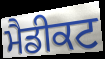
ਮੈਡੀਕਟ